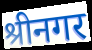
श्रीनगर